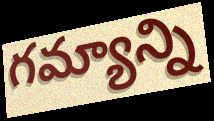
గమ్యాన్ని